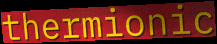
thermionic